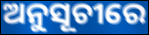
ଅନୁସୂଚୀରେ